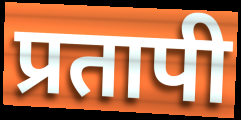
प्रतापी